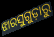
ଝାରସୁଗୁଡ଼ାରୁ